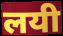
लयी